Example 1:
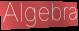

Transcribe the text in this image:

Algebra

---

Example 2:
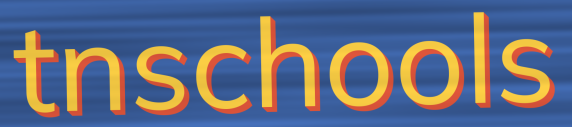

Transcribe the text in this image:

tnschools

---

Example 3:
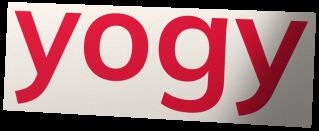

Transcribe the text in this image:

yogy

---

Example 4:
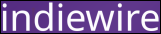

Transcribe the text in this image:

indiewire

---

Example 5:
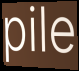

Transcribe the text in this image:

pile